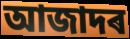
আজাদৰ